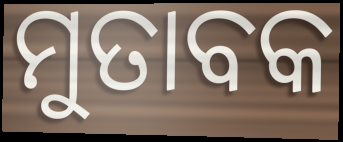
ମୁତାବକ